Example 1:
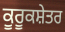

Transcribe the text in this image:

ਕੂਰੂਕਸ਼ੇਤਰ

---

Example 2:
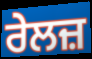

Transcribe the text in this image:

ਰੇਲਜ਼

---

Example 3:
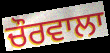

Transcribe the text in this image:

ਚੌਰਵਾਲਾ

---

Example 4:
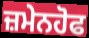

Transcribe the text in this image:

ਜ਼ਮੇਨਹੋਫ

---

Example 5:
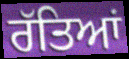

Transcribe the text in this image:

ਰੱਤਿਆਂ